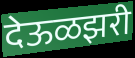
देऊळझरी